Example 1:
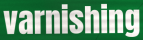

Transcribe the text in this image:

varnishing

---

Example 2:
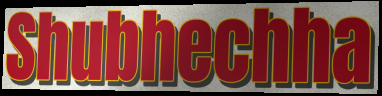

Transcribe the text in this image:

Shubhechha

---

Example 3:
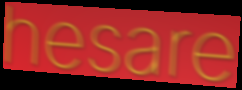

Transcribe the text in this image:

hesare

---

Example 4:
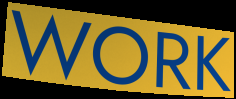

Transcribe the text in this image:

WORK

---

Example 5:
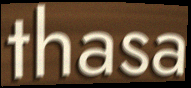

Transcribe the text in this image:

thasa